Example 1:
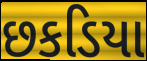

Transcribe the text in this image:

છકડિયા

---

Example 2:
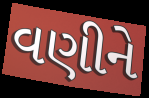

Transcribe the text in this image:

વણીને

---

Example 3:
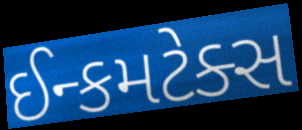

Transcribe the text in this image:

ઈન્કમટેક્સ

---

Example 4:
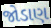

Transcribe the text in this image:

જોડાણ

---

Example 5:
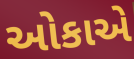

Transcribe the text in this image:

ઓકાએ